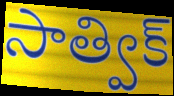
సాత్విక్